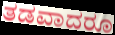
ತಡವಾದರೂ